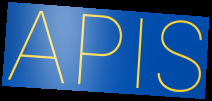
APIS